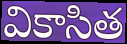
వికాసిత